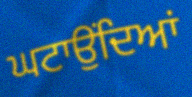
ਘਟਾਉਂਦਿਆਂ